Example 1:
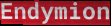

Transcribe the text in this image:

Endymion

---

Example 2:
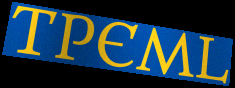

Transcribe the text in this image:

TPEML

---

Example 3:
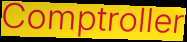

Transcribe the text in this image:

Comptroller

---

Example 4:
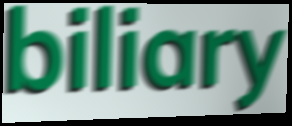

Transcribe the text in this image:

biliary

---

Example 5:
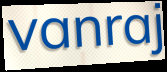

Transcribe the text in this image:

vanraj